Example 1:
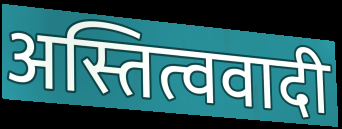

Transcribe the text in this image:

अस्तित्ववादी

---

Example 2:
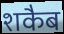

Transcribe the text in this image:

शकैब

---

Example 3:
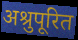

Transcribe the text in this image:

अश्रुपूरित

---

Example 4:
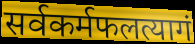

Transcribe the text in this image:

सर्वकर्मफलत्यागं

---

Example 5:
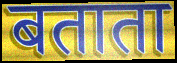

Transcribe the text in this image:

बताता